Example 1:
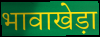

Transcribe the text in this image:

भावाखेड़ा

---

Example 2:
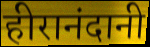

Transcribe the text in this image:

हीरानंदानी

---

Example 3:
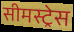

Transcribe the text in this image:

सीमस्ट्रेस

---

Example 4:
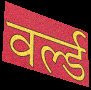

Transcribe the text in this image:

वर्ल्ड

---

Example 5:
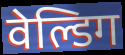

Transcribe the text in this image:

वेल्डिग